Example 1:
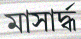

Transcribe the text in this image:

মাসার্দ্ধ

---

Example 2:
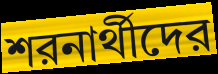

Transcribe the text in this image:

শরনার্থীদের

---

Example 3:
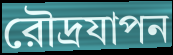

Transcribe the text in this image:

রৌদ্রযাপন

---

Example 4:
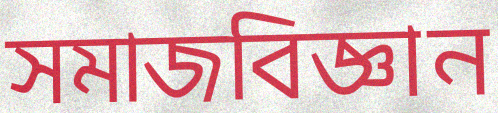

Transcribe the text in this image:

সমাজবিজ্ঞান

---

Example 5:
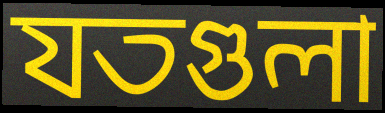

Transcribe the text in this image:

যতগুলা